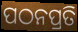
ପଠନପ୍ରତି